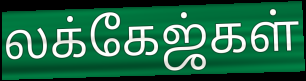
லக்கேஜ்கள்